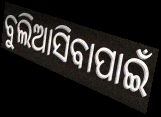
ବୁଲିଆସିବାପାଇଁ